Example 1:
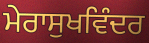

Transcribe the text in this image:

ਮੇਰਾਸੁਖਵਿੰਦਰ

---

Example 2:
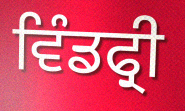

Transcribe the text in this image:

ਵਿੰਡਫ੍ਰੀ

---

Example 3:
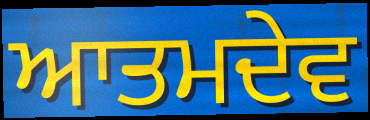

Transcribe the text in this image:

ਆਤਮਦੇਵ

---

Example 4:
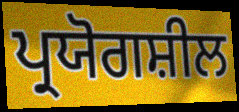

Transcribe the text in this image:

ਪ੍ਰਯੋਗਸ਼ੀਲ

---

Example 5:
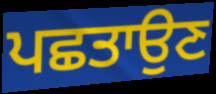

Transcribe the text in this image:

ਪਛਤਾਉਣ